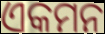
ଏକମନ